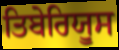
ਤਿਬੇਰਿਯੂਸ